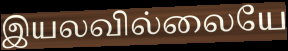
இயலவில்லையே